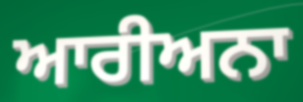
ਆਰੀਅਨਾ